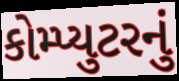
કોમ્પ્યુટરનું